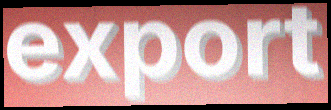
export